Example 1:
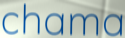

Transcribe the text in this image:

chama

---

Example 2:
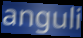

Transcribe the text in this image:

anguli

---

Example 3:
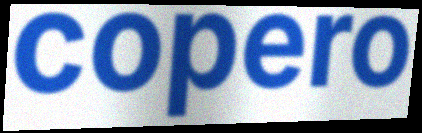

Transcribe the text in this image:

copero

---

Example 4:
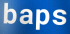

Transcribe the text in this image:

baps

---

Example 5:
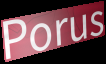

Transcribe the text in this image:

Porus